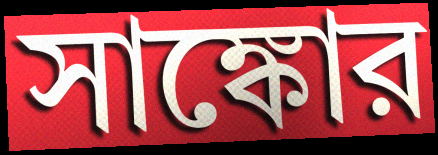
সাঙ্কোর